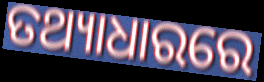
ତଥ୍ୟାଧାରରେ